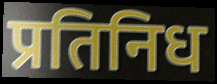
प्रतिनिध